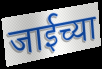
जाईच्या